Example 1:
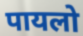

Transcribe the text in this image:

पायलो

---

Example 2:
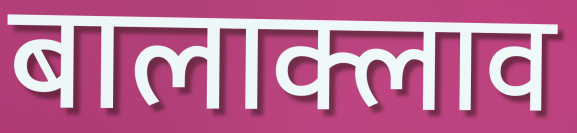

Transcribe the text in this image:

बालाक्लाव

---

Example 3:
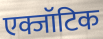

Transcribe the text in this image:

एक्जॉटिक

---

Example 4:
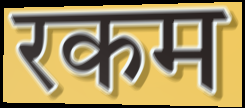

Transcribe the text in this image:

रकम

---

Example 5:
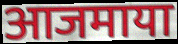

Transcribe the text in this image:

आजमाया